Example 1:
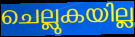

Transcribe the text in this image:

ചെല്ലുകയില്ല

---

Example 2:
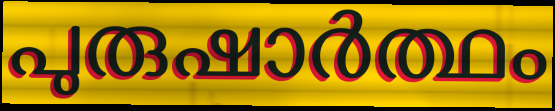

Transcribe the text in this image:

പുരുഷാർത്ഥം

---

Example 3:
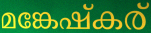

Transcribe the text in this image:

മങ്കേഷ്കര്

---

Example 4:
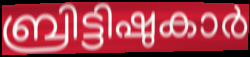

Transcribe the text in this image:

ബ്രിട്ടിഷുകാർ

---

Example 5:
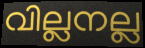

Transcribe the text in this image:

വില്ലനല്ല